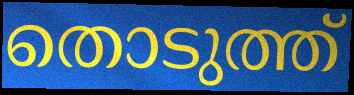
തൊടുത്ത്